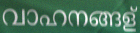
വാഹനങ്ങള്